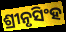
ଶ୍ରୀନୃସିଂହ